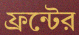
ফ্রন্টের